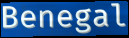
Benegal